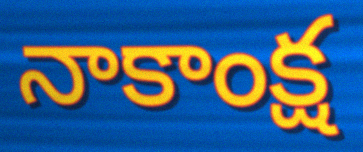
నాకాంక్ష